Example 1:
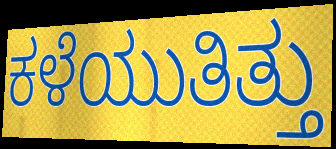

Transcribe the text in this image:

ಕಳೆಯುತಿತ್ತು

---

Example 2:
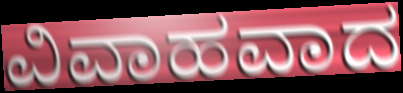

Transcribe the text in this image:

ವಿವಾಹವಾದ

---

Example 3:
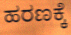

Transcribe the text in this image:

ಹರಣಕ್ಕೆ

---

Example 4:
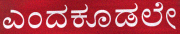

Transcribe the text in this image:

ಎಂದಕೂಡಲೇ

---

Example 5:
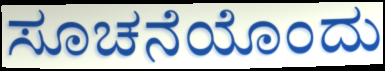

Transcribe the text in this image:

ಸೂಚನೆಯೊಂದು